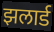
झलार्ड